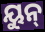
ୟୁନ୍